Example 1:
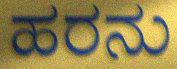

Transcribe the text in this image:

ಹರನು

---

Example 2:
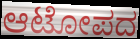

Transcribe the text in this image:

ಆಟೋಪದ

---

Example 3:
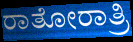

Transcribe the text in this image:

ರಾತೋರಾತ್ರಿ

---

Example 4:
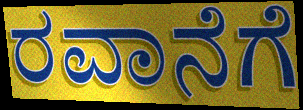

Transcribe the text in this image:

ರವಾನೆಗೆ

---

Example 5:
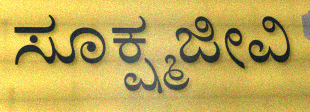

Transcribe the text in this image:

ಸೂಕ್ಷ್ಮಜೀವಿ